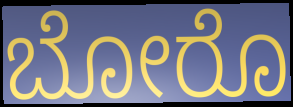
ಬೋರೊ